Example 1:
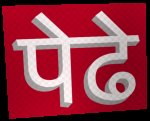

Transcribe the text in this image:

पेढे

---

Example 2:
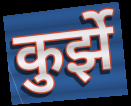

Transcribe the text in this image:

कुर्झे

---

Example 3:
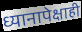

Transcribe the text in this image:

ध्यानापेक्षाही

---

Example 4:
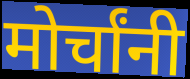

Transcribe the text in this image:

मोर्चांनी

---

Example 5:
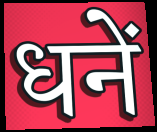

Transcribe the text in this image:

धनें